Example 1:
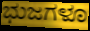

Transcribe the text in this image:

ಭುಜಗಳೂ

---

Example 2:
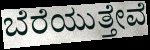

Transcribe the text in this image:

ಬೆರೆಯುತ್ತೇವೆ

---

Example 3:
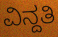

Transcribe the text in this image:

ವಿನ್ದತಿ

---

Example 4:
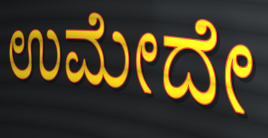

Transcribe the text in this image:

ಉಮೇದೇ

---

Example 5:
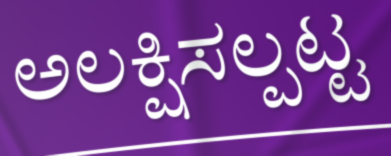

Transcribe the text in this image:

ಅಲಕ್ಷಿಸಲ್ಪಟ್ಟ